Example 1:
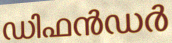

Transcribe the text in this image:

ഡിഫൻഡർ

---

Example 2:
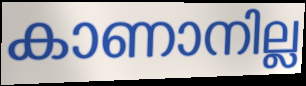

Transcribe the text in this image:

കാണാനില്ല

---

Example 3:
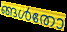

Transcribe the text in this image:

ങ്ങൾതോ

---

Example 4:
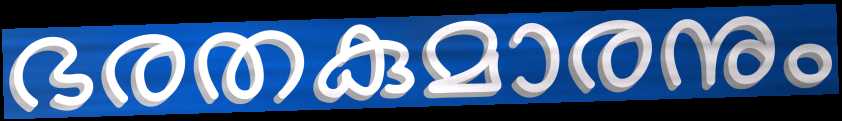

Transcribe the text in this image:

ഭരതകുമാരനും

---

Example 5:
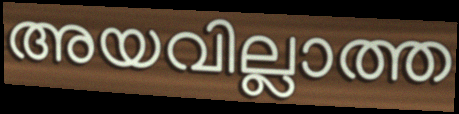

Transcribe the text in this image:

അയവില്ലാത്ത